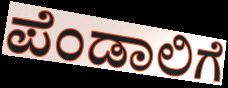
ಪೆಂಡಾಲಿಗೆ